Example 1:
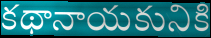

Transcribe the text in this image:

కథానాయకునికి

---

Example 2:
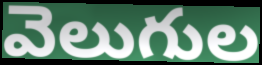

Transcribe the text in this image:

వెలుగుల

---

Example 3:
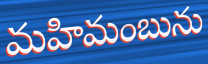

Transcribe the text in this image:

మహిమంబును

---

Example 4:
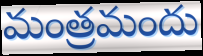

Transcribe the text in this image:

మంత్రమందు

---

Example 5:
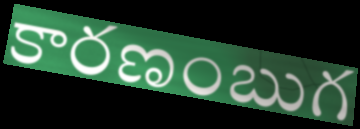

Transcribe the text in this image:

కారణంబుగ